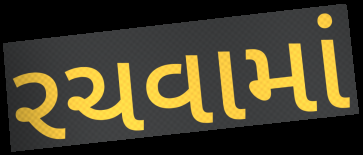
રચવામાં